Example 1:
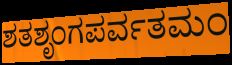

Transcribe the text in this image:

ಶತಶೃಂಗಪರ್ವತಮಂ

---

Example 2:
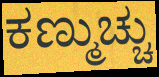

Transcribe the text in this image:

ಕಣ್ಮುಚ್ಚು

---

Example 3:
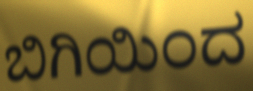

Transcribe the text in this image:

ಬಿಗಿಯಿಂದ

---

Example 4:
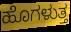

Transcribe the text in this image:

ಹೊಗಳುತ್ತ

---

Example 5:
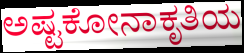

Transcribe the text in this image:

ಅಷ್ಟಕೋನಾಕೃತಿಯ